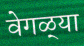
वेगळ्‌या